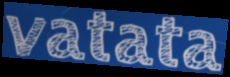
vatata